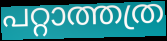
പറ്റാത്തത്ര